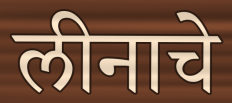
लीनाचे